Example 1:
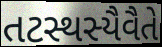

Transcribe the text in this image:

તટસ્થસ્યૈવૈતે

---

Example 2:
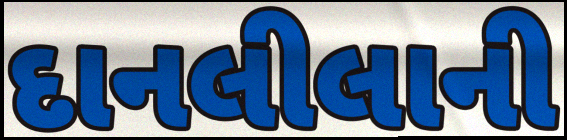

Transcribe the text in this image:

દાનલીલાની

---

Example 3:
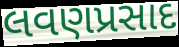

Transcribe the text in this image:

લવણપ્રસાદ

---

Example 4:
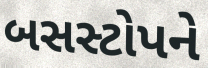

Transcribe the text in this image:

બસસ્ટોપને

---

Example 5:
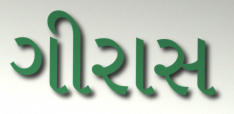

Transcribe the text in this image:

ગીરાસ